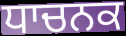
ਧਾਚਨਕ